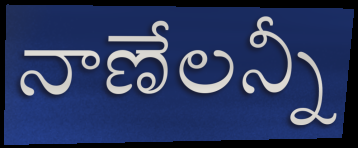
నాణేలన్నీ